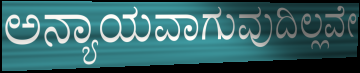
ಅನ್ಯಾಯವಾಗುವುದಿಲ್ಲವೇ